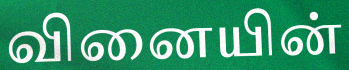
வினையின்